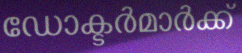
ഡോക്ടർമാർക്ക്